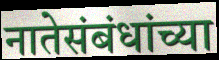
नातेसंबंधांच्या